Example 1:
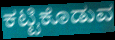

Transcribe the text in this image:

ಕಟ್ಟಿಕೊಡುವ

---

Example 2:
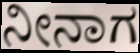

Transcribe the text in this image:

ನೀನಾಗ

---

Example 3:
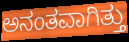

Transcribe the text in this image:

ಅನಂತವಾಗಿತ್ತು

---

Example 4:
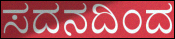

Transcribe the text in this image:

ಸದನದಿಂದ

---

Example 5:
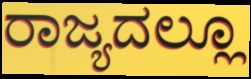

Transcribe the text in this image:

ರಾಜ್ಯದಲ್ಲೂ